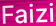
Faizi